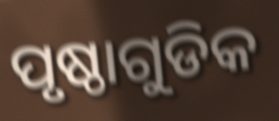
ପୃଷ୍ଠାଗୁଡିକ